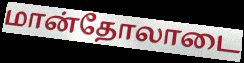
மான்தோலாடை